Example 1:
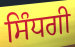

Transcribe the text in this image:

ਸਿੰਧਗੀ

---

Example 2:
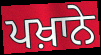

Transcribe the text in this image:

ਪਖ਼ਾਨੇ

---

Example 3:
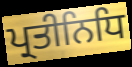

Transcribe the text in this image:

ਪ੍ਰਤੀਨਿਧਿ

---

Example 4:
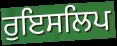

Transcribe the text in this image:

ਰੁਇਸਲਿਪ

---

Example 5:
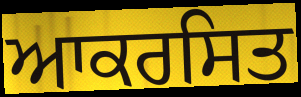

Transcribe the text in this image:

ਆਕਰਸਿਤ